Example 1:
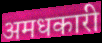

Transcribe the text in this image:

अमधकारी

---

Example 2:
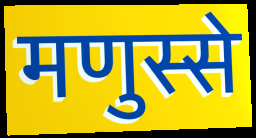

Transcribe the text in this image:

मणुस्से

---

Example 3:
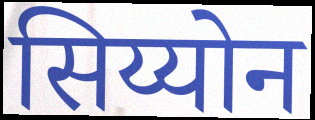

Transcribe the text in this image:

सिय्योन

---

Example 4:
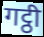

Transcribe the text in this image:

गट्ठी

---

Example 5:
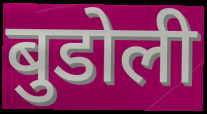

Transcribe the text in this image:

बुडोली